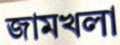
জামখলা